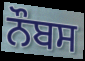
ਨੌਬਸ